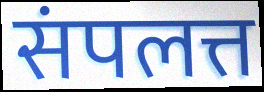
संपलत्त